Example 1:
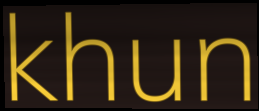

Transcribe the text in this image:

khun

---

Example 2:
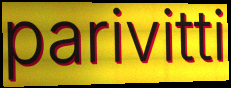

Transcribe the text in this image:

parivitti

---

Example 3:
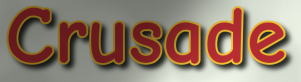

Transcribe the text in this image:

Crusade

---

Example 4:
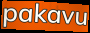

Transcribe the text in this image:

pakavu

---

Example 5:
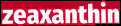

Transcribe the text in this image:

zeaxanthin